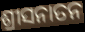
ଶ୍ରୀସନାତନ